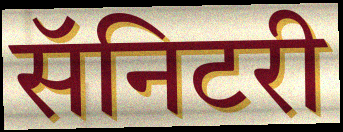
सॅनिटरी